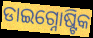
ଡାଇଗ୍ନୋଷ୍ଟିକ